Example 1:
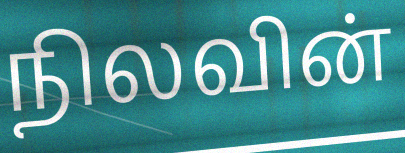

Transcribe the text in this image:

நிலவின்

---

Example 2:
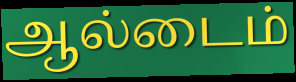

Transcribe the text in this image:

ஆல்டைம்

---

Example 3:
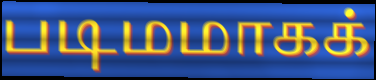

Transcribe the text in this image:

படிமமாகக்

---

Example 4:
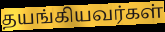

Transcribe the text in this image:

தயங்கியவர்கள்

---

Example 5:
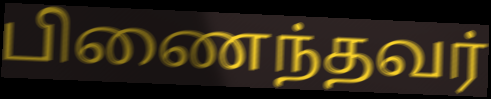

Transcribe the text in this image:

பிணைந்தவர்